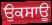
ਉਕਸਾਊ